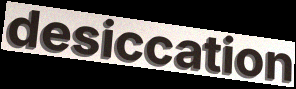
desiccation